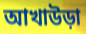
আখাউড়া